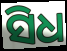
ସିଧ